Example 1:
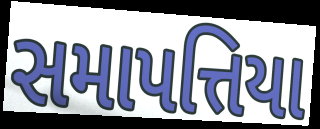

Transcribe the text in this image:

સમાપત્તિયા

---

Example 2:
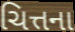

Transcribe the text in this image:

ચિત્તના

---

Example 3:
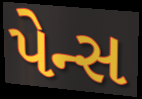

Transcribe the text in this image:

પેન્સ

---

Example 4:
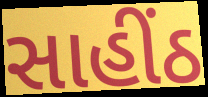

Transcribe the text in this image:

સાહીંઠ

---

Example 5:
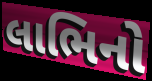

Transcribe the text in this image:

લાભિનો